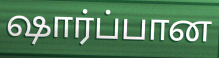
ஷார்ப்பான